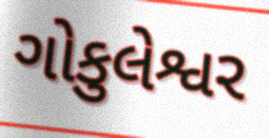
ગોકુલેશ્વર